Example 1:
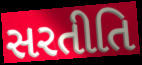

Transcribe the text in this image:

સરતીતિ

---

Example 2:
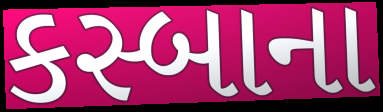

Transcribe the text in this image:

કસ્બાના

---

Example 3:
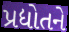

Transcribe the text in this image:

પ્રદ્યોતને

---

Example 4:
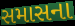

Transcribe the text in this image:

સમાસના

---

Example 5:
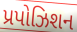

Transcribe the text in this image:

પ્રપોઝિશન